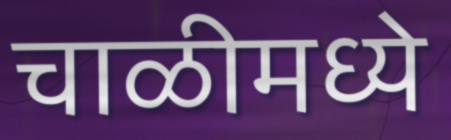
चाळीमध्ये